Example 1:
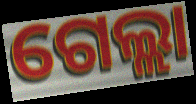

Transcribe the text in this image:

ଗେଲ୍ଲା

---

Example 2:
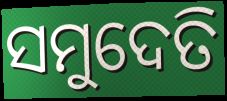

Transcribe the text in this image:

ସମୁଦେତି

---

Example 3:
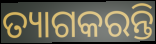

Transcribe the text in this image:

ତ୍ୟାଗକରନ୍ତି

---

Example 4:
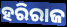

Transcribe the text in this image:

ହରିରାଜ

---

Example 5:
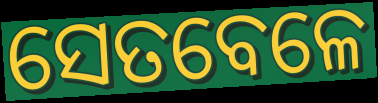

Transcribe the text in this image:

ସେତବେଳେ